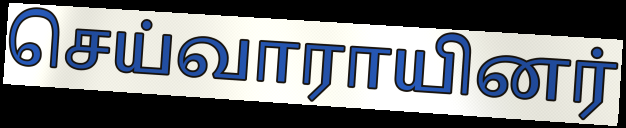
செய்வாராயினர்